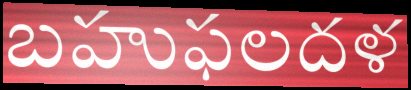
బహుఫలదళ